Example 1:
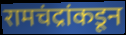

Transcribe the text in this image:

रामचंद्रांकडून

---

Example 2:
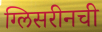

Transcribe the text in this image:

ग्लिसरीनची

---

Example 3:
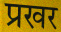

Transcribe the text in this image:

प्रखर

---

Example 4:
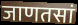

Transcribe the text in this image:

जाणतसां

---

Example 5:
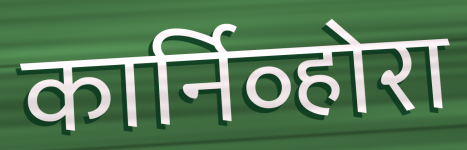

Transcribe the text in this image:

कार्निव्होरा